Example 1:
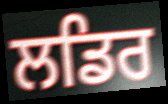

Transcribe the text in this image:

ਲਡਿਰ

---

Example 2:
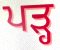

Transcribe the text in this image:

ਪੜ੍ਹ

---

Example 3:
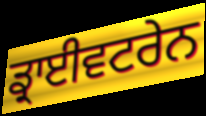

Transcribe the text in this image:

ਡ੍ਰਾਈਵਟਰੇਨ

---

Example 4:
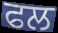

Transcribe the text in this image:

ਫਲ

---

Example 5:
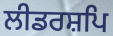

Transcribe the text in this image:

ਲੀਡਰਸ਼ਪਿ